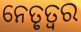
ନେତୃତ୍ଵର